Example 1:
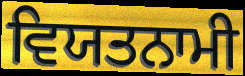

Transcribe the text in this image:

ਵਿਯਤਨਾਮੀ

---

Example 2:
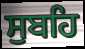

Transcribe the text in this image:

ਸੁਬਹਿ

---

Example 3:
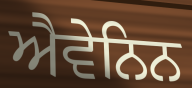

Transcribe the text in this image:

ਐਵੇਨਿਨ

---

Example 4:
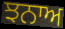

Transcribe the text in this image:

ਝਨਾਅ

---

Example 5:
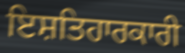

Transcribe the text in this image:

ਇਸ਼ਤਿਹਾਰਕਾਰੀ